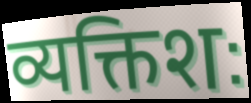
व्यक्तिशः